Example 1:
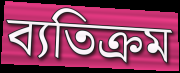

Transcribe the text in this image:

ব্যতিক্রম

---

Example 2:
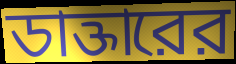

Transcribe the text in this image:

ডাক্তারের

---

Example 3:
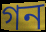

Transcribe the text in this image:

গন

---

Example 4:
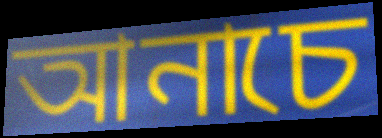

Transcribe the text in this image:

আনাচে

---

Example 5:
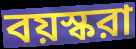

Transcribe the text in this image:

বয়স্করা